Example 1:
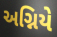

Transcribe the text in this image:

અગ્નિયે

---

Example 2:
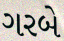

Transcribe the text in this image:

ગરબે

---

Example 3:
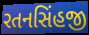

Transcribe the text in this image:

રતનસિંહજી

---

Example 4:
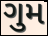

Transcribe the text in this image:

ગુમ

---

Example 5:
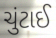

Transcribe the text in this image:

ચુંટાઈ